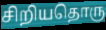
சிறியதொரு